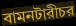
বামনটারীচর